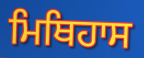
ਮਿਥਿਹਾਸ